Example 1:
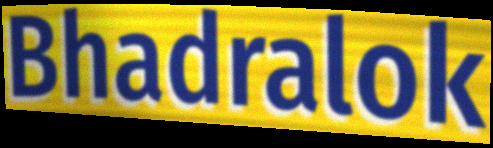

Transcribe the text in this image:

Bhadralok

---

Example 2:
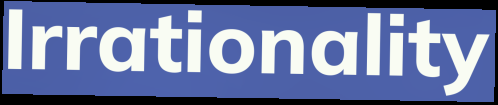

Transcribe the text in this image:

Irrationality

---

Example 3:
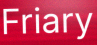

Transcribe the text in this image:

Friary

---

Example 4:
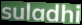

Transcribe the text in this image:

suladhi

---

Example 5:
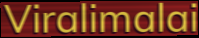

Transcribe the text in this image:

Viralimalai